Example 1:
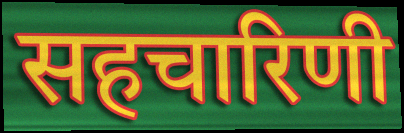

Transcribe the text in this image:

सहचारिणी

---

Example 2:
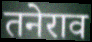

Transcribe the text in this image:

तनेराव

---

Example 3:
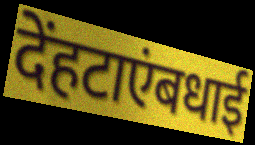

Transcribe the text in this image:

देंहटाएंबधाई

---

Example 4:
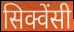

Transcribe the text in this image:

सिक्वेंसी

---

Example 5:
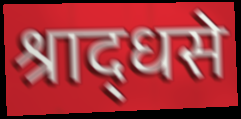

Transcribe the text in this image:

श्राद्धसे